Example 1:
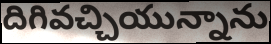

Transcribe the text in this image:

దిగివచ్చియున్నాను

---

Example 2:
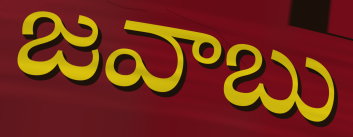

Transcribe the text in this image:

జవాబు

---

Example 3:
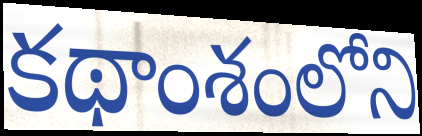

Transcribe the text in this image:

కథాంశంలోని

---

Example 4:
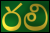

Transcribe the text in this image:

రలి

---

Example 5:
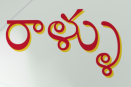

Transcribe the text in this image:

రాళ్ళు